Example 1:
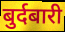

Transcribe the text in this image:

बुर्दबारी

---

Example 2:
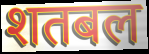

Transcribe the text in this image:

शतबल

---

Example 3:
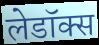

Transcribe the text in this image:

लेडॉक्स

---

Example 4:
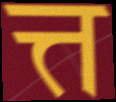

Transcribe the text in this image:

त्त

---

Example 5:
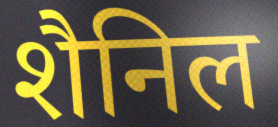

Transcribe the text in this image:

शैनिल